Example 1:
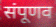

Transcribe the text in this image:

संपूणव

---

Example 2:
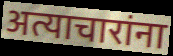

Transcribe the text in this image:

अत्याचारांना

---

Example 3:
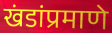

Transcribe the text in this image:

खंडांप्रमाणे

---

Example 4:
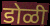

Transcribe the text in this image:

डोळी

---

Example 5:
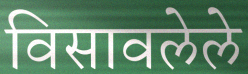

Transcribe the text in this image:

विसावलेले